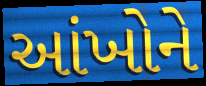
આંખોને